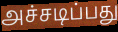
அச்சடிப்பது